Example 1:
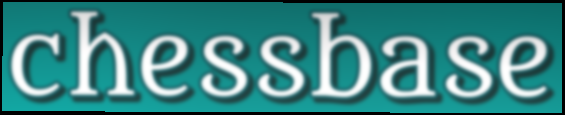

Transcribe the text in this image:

chessbase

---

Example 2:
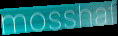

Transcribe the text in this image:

mosshaf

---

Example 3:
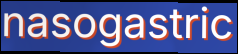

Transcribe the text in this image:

nasogastric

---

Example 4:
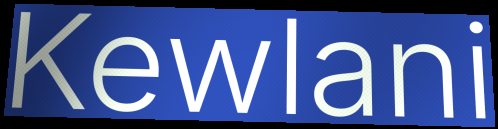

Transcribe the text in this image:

Kewlani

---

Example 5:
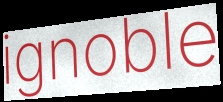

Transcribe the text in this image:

ignoble